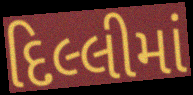
દિલ્લીમાં